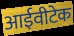
आईवीटेक